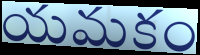
యమకం